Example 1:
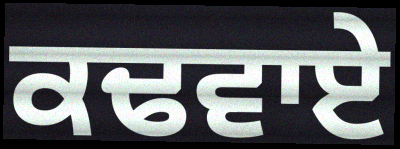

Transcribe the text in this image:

ਕਢਵਾਏ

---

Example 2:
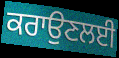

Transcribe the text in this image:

ਕਰਾਉਣਲਈ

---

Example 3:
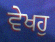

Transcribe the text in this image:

ਵੇਖਹੁ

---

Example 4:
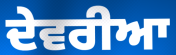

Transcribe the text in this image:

ਦੇਵਰੀਆ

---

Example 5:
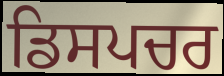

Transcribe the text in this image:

ਡਿਸਪਚਰ